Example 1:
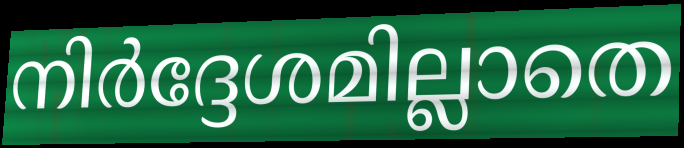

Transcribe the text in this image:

നിർദ്ദേശമില്ലാതെ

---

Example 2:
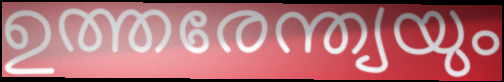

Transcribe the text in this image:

ഉത്തരേന്ത്യയും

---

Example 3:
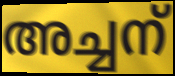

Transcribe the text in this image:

അച്ചന്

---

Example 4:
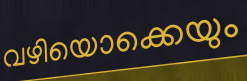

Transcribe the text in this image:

വഴിയൊക്കെയും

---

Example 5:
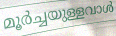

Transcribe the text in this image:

മൂർച്ചയുള്ളവാൾ